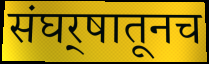
संघर्षातूनच